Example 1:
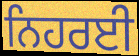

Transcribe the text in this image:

ਨਿਹਰਈ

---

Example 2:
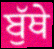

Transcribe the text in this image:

ਬੁੱਥੇ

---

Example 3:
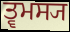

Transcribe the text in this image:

ਤ੍ਵਮਸ੍ਯ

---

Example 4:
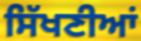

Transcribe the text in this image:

ਸਿੱਖਣੀਆਂ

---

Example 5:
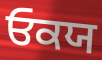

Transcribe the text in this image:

ਓਕਯ